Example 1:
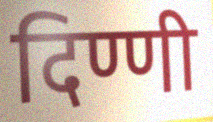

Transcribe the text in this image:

दिण्णी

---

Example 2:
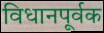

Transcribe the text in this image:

विधानपूर्वक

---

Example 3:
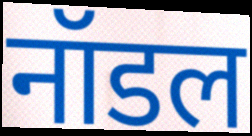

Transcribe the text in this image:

नॉडल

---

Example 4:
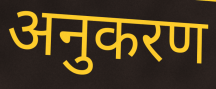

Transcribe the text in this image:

अनुकरण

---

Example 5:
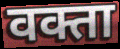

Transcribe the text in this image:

वक्ता